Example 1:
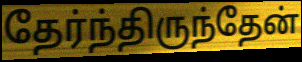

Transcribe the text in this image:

தேர்ந்திருந்தேன்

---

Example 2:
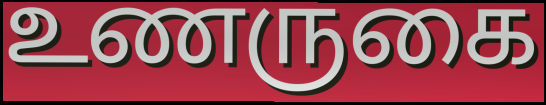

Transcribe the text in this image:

உணருகை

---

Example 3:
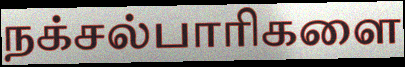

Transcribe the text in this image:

நக்சல்பாரிகளை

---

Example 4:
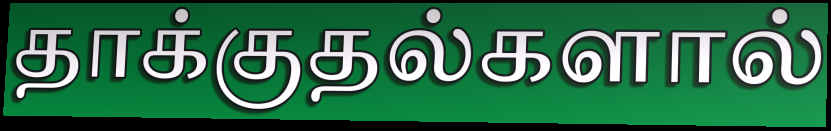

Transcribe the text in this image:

தாக்குதல்களால்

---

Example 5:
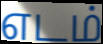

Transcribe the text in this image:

எடம்